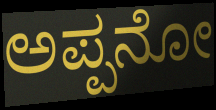
ಅಪ್ಪನೋ